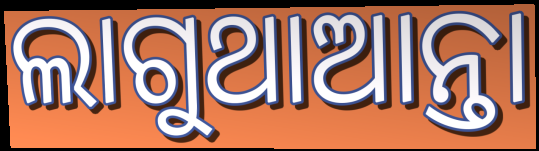
ଲାଗୁଥାଆନ୍ତା